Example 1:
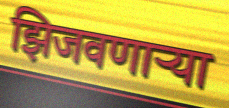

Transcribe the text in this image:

झिजवणाऱ्या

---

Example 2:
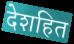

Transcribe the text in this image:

देशहित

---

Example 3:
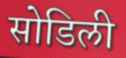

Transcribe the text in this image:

सोडिली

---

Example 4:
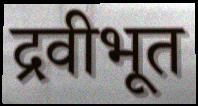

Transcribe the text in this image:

द्रवीभूत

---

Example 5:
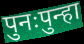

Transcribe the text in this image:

पुनःपुन्हा